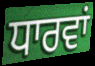
ਧਾਰਵਾਂ